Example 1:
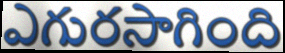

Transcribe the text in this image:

ఎగురసాగింది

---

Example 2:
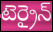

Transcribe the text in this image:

టెర్రైన్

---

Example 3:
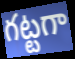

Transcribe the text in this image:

గట్టగా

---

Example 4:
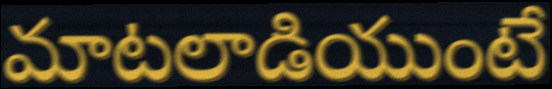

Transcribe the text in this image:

మాటలాడియుంటే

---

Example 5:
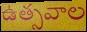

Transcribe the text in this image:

ఉత్సవాల